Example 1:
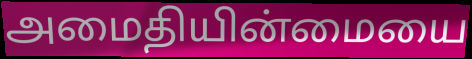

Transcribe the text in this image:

அமைதியின்மையை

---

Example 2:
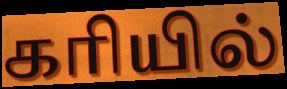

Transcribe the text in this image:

கரியில்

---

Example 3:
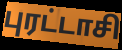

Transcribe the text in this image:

புரட்டாசி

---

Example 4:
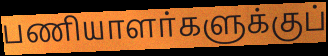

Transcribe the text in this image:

பணியாளர்களுக்குப்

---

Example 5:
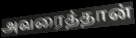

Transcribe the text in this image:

அவரைத்தான்